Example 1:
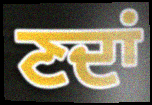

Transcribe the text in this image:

ਣਦਾਂ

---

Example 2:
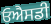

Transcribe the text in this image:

ਓਐਸਡੀ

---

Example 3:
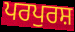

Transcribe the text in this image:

ਪਰਪੁਰਸ਼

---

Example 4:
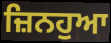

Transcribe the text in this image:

ਜ਼ਿਨਹੁਆ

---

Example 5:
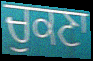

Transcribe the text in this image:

ਚੁਕਣਾ